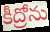
కీద్రోను